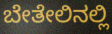
ಬೇತೇಲಿನಲ್ಲಿ